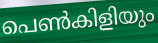
പെൺകിളിയും